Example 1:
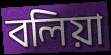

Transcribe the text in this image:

বলিয়া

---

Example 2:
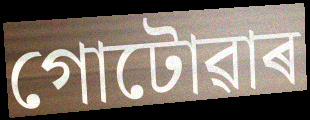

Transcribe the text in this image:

গোটোৱাৰ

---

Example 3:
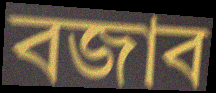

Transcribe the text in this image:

বজাব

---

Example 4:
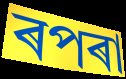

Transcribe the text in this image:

ৰপৰা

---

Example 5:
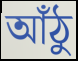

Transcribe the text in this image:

আঁঠু